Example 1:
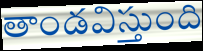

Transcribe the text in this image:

తాండవిస్తుంది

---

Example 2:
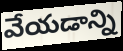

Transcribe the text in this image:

వేయడాన్ని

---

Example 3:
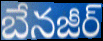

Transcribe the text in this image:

బేనజీర్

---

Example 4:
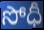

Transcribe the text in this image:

సోధీ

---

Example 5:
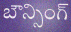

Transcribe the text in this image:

బౌన్సింగ్